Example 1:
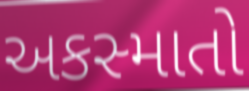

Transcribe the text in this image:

અકસ્માતો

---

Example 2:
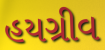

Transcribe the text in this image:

હયગ્રીવ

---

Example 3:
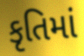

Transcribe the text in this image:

કૃતિમાં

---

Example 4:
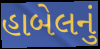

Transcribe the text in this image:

હાબેલનું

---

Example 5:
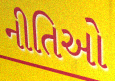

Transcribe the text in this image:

નીતિઓ